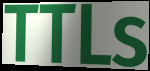
TTLs